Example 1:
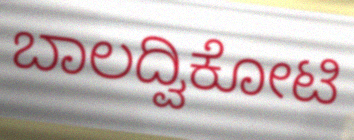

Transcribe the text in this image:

ಬಾಲದ್ವಿಕೋಟಿ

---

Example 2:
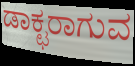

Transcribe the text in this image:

ಡಾಕ್ಟರಾಗುವ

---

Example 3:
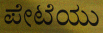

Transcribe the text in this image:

ಪೇಟೆಯು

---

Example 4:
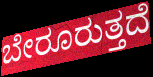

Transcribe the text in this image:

ಬೇರೂರುತ್ತದೆ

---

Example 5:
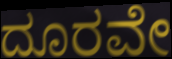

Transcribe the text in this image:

ದೂರವೇ